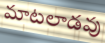
మాటలాడవు